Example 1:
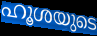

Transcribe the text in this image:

ഹൂശയുടെ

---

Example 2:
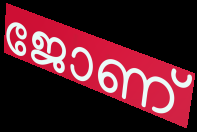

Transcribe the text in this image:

ജോണ്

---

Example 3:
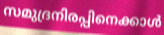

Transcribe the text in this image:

സമുദ്രനിരപ്പിനെക്കാൾ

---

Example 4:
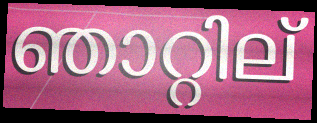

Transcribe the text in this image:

ഞാറ്റില്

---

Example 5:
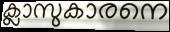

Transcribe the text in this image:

ക്ലാസുകാരനെ